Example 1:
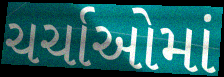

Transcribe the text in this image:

ચર્ચાઓમાં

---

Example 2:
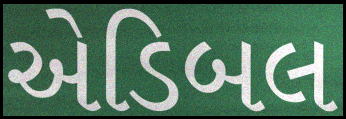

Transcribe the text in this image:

એડિબલ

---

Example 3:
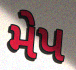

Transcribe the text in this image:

મેપ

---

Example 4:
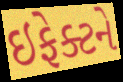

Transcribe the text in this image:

ઇફેક્ટને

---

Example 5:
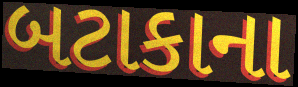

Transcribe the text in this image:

બટાકાના